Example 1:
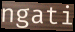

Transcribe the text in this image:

ngati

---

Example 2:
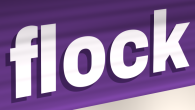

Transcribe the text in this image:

flock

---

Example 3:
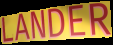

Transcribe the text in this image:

LANDER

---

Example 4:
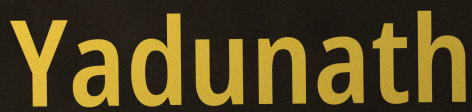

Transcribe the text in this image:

Yadunath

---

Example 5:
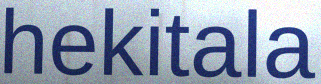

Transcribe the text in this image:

hekitala